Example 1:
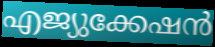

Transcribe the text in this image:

എജ്യുക്കേഷൻ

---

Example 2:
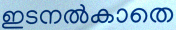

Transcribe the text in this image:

ഇടനൽകാതെ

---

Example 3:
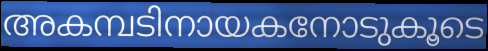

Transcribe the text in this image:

അകമ്പടിനായകനോടുകൂടെ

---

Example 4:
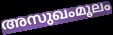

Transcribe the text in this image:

അസുഖംമൂലം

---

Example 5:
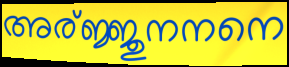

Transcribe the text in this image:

അര്ജ്ജുനനനെ